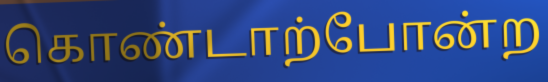
கொண்டாற்போன்ற